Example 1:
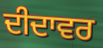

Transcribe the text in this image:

ਦੀਦਾਵਰ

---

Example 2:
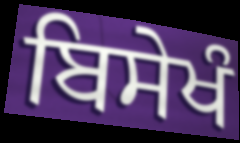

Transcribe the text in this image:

ਬਿਸੇਖੰ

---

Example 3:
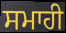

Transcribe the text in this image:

ਸਮਾਹੀ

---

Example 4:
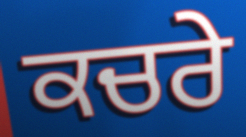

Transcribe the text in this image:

ਕਚਰੇ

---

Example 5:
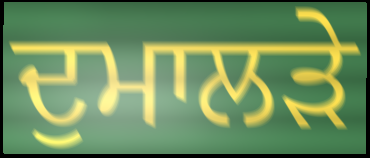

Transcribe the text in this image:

ਦੁਮਾਲੜੇ